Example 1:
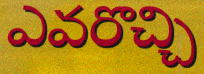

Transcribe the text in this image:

ఎవరొచ్చి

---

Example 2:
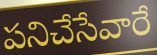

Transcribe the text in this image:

పనిచేసేవారే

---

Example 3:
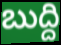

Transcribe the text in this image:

బుద్ది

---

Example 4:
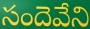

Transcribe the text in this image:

సందెవేని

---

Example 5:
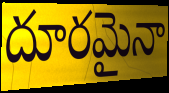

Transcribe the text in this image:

దూరమైనా